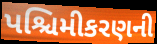
પશ્ચિમીકરણની